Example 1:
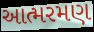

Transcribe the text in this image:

આત્મરમણ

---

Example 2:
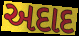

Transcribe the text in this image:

અદાદ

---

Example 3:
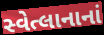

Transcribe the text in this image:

સ્વેત્લાનાનાં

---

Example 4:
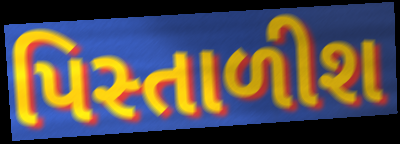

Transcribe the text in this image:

પિસ્તાળીશ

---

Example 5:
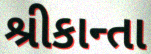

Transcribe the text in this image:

શ્રીકાન્તા